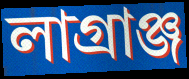
লাগ্ৰাঞ্জ